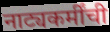
नाट्यकर्मींची